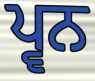
ਪ੍ਵਨ